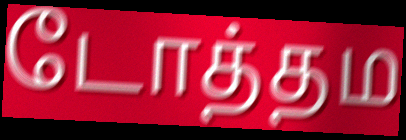
டோத்தம